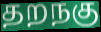
தறநகு